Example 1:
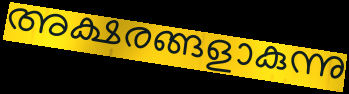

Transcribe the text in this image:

അക്ഷരങ്ങളാകുന്നു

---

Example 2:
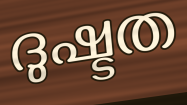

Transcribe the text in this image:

ദുഷ്ടത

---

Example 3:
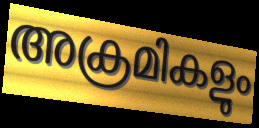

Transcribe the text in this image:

അക്രമികളും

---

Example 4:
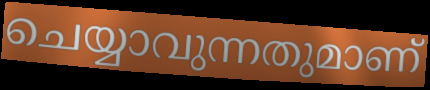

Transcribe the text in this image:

ചെയ്യാവുന്നതുമാണ്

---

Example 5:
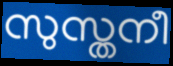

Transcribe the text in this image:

സുസ്തനീ